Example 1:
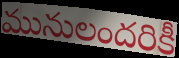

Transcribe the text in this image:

మునులందరికీ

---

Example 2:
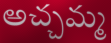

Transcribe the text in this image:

అచ్చమ్మ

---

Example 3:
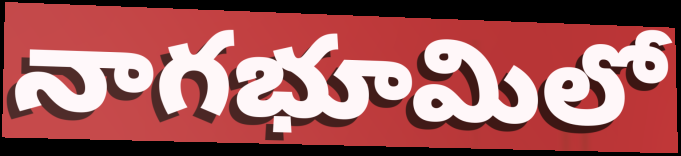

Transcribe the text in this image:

నాగభూమిలో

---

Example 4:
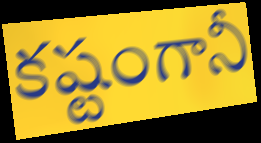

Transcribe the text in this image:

కష్టంగానీ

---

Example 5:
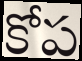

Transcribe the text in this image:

కోప